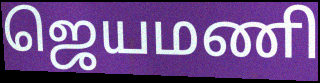
ஜெயமணி